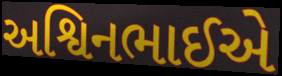
અશ્વિનભાઈએ